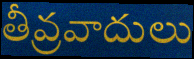
తీవ్రవాదులు